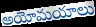
అయోమయాలు